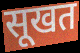
सूखत